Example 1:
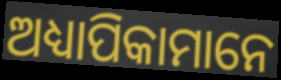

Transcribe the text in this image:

ଅଧ୍ୟାପିକାମାନେ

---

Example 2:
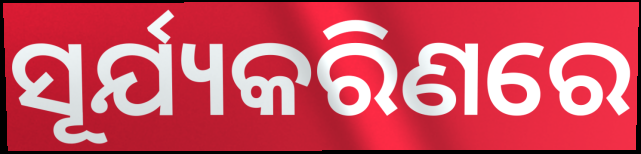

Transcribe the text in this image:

ସୂର୍ଯ୍ୟକରିଣରେ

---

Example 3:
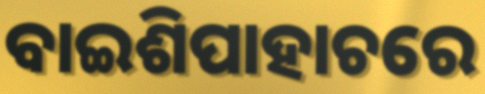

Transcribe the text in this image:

ବାଇଶିପାହାଚରେ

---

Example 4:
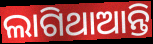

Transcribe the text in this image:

ଲାଗିଥାଆନ୍ତି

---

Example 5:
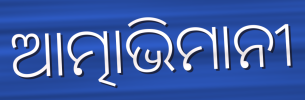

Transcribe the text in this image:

ଆତ୍ମାଭିମାନୀ